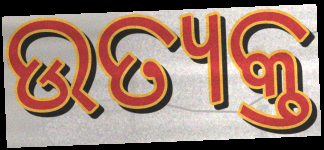
ଉତ୍ୟକ୍ତ